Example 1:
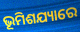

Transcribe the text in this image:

ଭୂମିଶଯ୍ୟାରେ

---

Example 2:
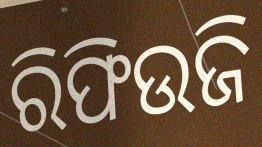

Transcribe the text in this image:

ରିଫିଉଜି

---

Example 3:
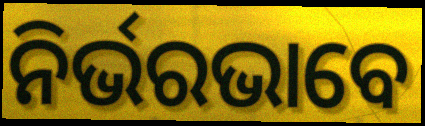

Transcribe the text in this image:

ନିର୍ଭରଭାବେ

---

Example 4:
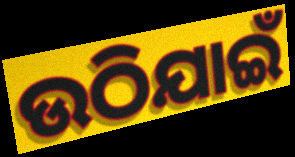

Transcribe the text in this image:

ଉଠିଯାଇଁ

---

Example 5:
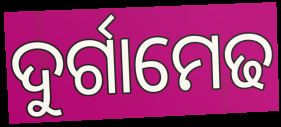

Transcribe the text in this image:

ଦୁର୍ଗାମେଢ